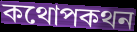
কথোপকথন